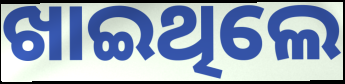
ଖାଇଥିଲେ